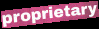
proprietary